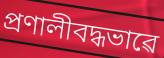
প্ৰণালীবদ্ধভাৱে